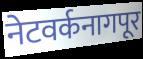
नेटवर्कनागपूर